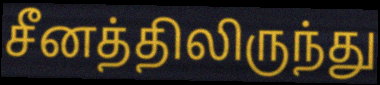
சீனத்திலிருந்து